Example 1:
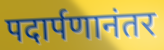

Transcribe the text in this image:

पदार्पणानंतर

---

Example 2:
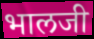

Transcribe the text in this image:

भालजी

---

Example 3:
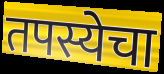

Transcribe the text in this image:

तपस्येचा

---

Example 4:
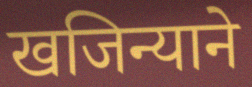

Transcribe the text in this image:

खजिन्याने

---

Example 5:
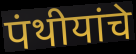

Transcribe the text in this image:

पंथीयांचे